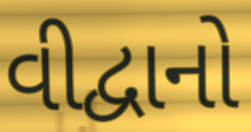
વીદ્વાનો